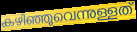
കഴിഞ്ഞുവെന്നുള്ളത്